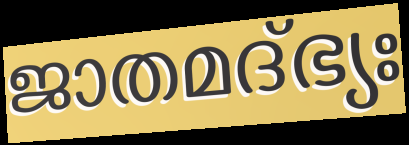
ജാതമദ്ഭ്യഃ